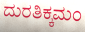
ದುರತಿಕ್ಕಮಂ